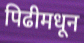
पिढीमधून